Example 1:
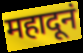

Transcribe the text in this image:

महादूनं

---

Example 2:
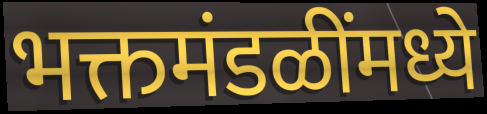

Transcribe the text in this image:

भक्तमंडळींमध्ये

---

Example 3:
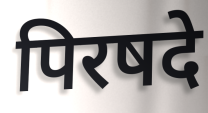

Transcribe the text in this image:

पिरषदे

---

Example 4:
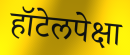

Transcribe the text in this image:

हॉटेलपेक्षा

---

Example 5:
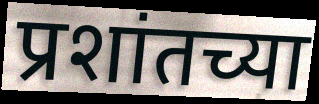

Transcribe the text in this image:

प्रशांतच्या